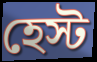
হেস্ট